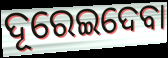
ଦୂରେଇଦେବା